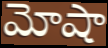
మోషా